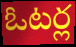
ఓటర్ల